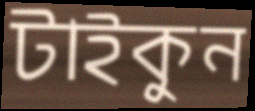
টাইকুন